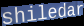
shiledar